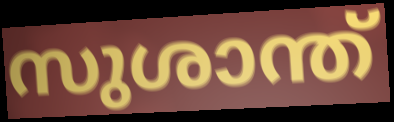
സുശാന്ത്